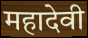
महादेवी